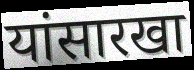
यांसारखा